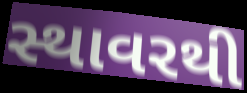
સ્થાવરથી